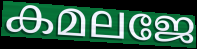
കമലജേ